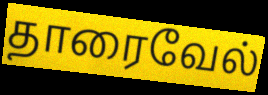
தாரைவேல்